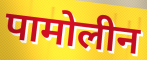
पामोलीन